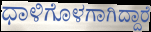
ಧಾಳಿಗೊಳಗಾಗಿದ್ದಾರೆ